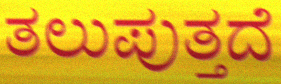
ತಲುಪುತ್ತದೆ